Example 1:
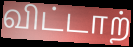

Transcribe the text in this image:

விட்டாற்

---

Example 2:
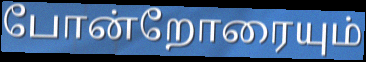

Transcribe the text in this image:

போன்றோரையும்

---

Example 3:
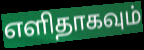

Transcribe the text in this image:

எளிதாகவும்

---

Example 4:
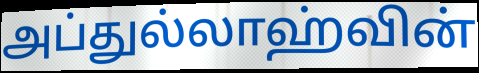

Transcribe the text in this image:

அப்துல்லாஹ்வின்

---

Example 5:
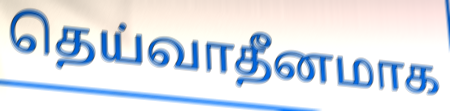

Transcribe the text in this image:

தெய்வாதீனமாக